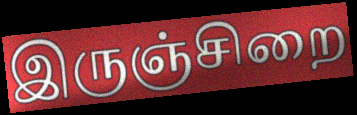
இருஞ்சிறை